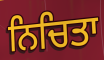
ਨਿਚਿਤਾ